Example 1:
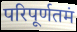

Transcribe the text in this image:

परिपूर्णतमं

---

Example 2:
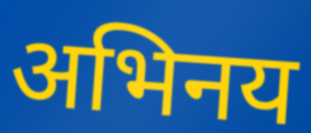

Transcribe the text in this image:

अभिनय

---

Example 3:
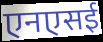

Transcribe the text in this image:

एनएसई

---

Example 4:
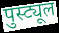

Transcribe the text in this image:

पुस्ट्यूल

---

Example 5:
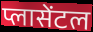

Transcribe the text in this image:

प्लासेंटल